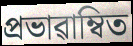
প্ৰভাৱাম্বিত